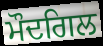
ਮੌਦਗਿਲ